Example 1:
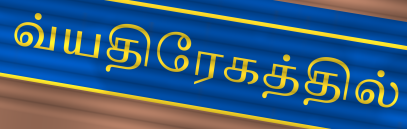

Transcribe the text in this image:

வ்யதிரேகத்தில்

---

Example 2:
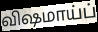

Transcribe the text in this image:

விஷமாய்ப்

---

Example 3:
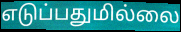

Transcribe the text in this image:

எடுப்பதுமில்லை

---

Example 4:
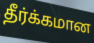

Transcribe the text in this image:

தீர்க்கமான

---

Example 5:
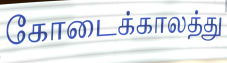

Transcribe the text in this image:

கோடைக்காலத்து